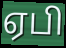
ஏபி